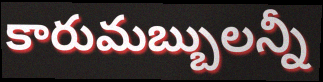
కారుమబ్బులన్నీ